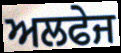
ਅਲਫੇਜ